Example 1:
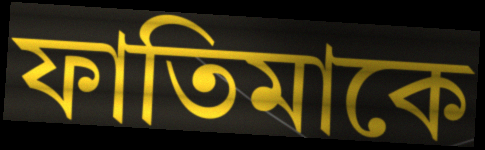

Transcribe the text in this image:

ফাতিমাকে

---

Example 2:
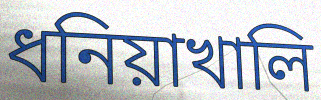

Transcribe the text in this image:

ধনিয়াখালি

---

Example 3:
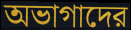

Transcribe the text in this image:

অভাগাদের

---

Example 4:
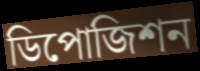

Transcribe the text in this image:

ডিপোজিশন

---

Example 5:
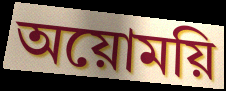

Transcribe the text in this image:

অয়োময়ি